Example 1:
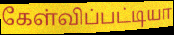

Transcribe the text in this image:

கேள்விப்பட்டியா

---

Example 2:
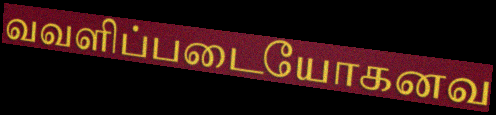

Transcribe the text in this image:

வவளிப்படையோகனவ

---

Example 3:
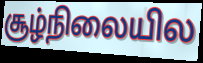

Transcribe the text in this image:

சூழ்நிலையில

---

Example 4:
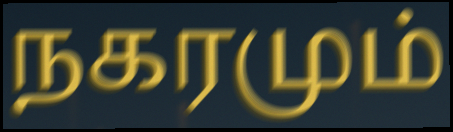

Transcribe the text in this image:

நகரமும்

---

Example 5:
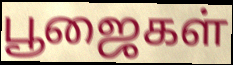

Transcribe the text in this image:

பூஜைகள்